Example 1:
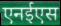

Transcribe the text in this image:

एनईएस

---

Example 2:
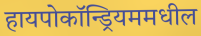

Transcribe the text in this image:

हायपोकॉन्ड्रियममधील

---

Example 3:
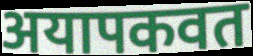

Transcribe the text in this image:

अयापकवत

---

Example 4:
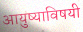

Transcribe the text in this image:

आयुष्याविषयी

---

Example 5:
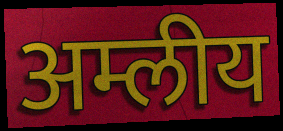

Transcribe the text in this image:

अम्‍लीय